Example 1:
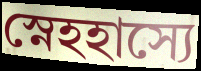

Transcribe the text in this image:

স্নেহহাস্যে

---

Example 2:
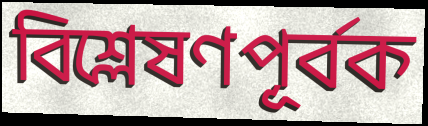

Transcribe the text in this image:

বিশ্লেষণপূর্বক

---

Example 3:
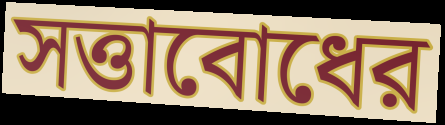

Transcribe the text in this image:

সত্তাবোধের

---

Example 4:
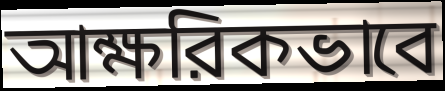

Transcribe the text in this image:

আক্ষরিকভাবে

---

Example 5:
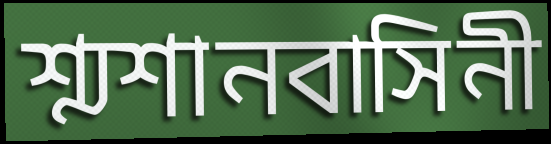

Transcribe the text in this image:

শ্মশানবাসিনী